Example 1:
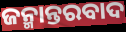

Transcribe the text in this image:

ଜନ୍ମାନ୍ତରବାଦ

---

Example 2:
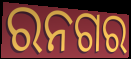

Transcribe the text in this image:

ରନଗର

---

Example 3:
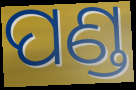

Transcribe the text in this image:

ପଣ୍ଡ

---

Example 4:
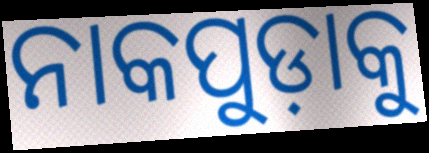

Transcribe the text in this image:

ନାକପୁଡ଼ାକୁ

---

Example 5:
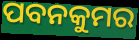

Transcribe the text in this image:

ପବନକୁମର